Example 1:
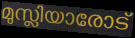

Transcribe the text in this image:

മുസ്ലിയാരോട്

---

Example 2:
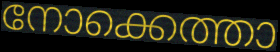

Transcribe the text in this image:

നോക്കെത്താ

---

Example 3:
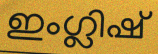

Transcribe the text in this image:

ഇംഗ്ലിഷ്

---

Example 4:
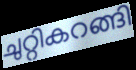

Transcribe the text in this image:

ചുറ്റികറങ്ങി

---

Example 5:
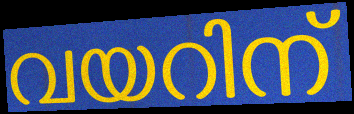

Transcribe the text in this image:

വയറിന്